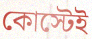
কোস্টেই